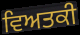
ਵਿਅਤਕੀ